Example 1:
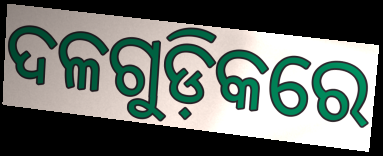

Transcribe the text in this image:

ଦଳଗୁଡ଼ିକରେ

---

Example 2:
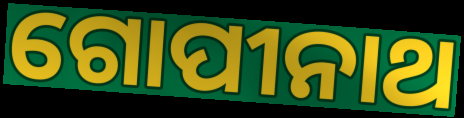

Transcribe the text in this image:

ଗୋପୀନାଥ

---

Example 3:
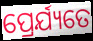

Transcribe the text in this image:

ପ୍ରେର୍ଯ୍ୟତେ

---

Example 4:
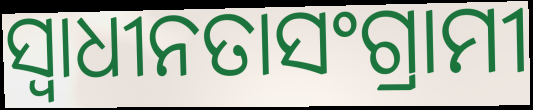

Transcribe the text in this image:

ସ୍ଵାଧୀନତାସଂଗ୍ରାମୀ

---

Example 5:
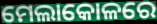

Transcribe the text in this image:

ମେଲାକୋଳରେ